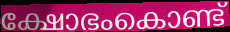
ക്ഷോഭംകൊണ്ട്